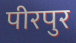
पीरपुर